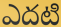
ఎదటి